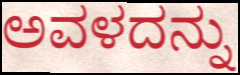
ಅವಳದನ್ನು